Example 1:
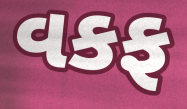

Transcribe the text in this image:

વકફ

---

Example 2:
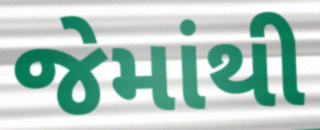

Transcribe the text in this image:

જેમાંથી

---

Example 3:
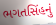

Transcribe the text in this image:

ભગતસિંહનું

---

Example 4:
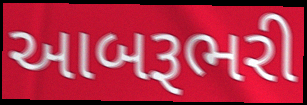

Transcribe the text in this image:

આબરૂભરી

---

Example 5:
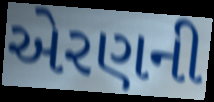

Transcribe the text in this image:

એરણની